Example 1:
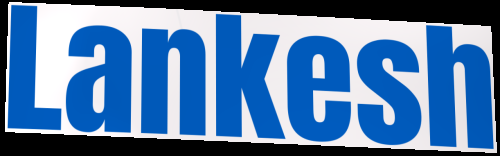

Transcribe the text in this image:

Lankesh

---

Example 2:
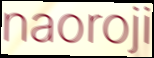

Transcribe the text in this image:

naoroji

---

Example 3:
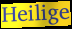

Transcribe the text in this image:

Heilige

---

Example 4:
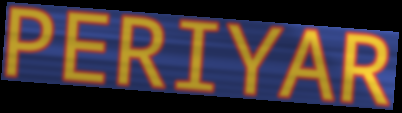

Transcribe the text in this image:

PERIYAR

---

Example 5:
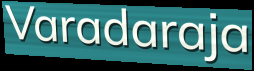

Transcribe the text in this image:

Varadaraja